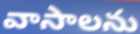
వాసాలను